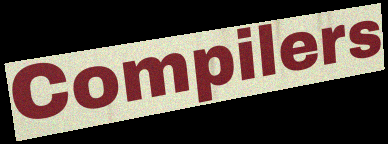
Compilers